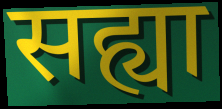
सह्या